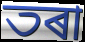
তৰা